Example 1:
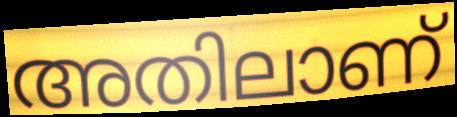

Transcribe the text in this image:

അതിലാണ്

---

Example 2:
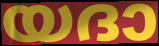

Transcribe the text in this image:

യദാ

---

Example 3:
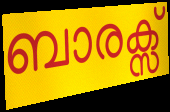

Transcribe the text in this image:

ബാരക്സ്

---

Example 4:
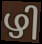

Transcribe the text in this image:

ഴി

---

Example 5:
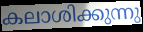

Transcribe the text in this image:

കലാശിക്കുന്നു